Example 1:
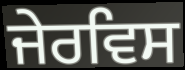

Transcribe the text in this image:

ਜੇਰਵਿਸ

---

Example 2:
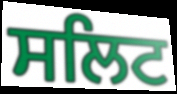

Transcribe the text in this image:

ਸਲਿਟ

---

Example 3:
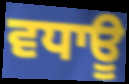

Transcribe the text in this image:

ਵਧਾਊ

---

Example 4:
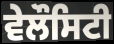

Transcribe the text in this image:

ਵੇਲੌਸਿਟੀ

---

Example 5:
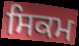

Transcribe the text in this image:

ਸਿਕਮ